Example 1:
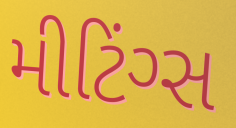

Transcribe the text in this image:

મીટિંગ્સ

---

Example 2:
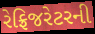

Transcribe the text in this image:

રેફ્રિજરેટરની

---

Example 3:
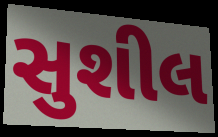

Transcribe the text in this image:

સુશીલ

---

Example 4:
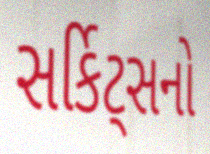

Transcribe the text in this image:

સર્કિટ્સનો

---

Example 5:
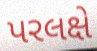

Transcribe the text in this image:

પરલક્ષે